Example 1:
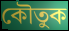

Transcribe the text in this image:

কৌতুক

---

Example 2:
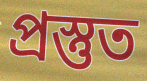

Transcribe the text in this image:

প্রস্তুত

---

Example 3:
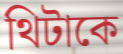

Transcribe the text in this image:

থিটাকে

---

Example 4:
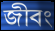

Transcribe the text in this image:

জীবং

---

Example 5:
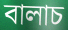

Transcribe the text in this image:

বালাচ